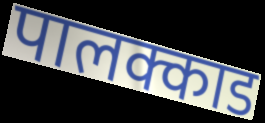
पालक्काड